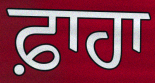
ਫ਼ਾਹਾ